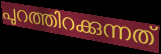
പുറത്തിറക്കുന്നത്